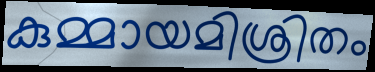
കുമ്മായമിശ്രിതം